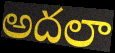
అదలా